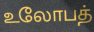
உலோபத்